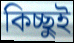
কিচ্ছুই